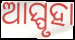
ଆସ୍ପୃହା